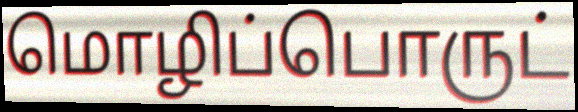
மொழிப்பொருட்